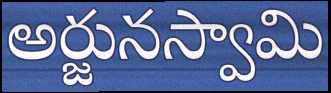
అర్జునస్వామి